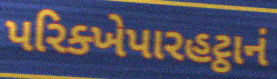
પરિક્ખેપારહટ્ઠાનં